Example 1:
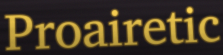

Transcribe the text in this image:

Proairetic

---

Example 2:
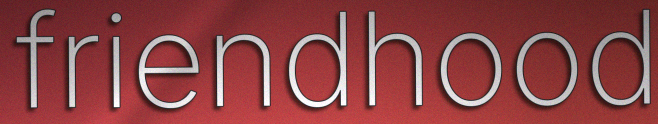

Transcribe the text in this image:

friendhood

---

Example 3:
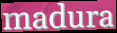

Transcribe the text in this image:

madura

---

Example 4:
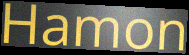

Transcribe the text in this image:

Hamon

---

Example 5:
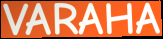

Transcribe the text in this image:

VARAHA